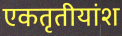
एकतृतीयांश